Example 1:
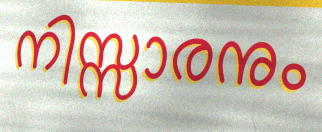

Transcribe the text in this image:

നിസ്സാരനും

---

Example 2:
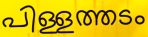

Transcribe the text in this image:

പിള്ളത്തടം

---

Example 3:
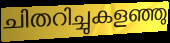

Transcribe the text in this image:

ചിതറിച്ചുകളഞ്ഞു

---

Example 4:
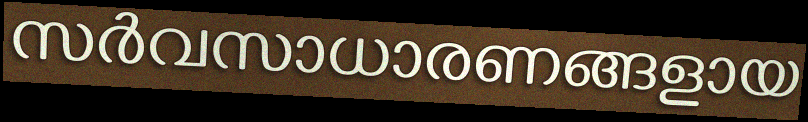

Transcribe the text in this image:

സർവസാധാരണങ്ങളായ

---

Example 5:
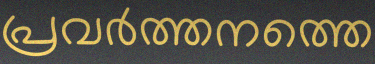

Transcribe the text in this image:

പ്രവർത്തനത്തെ